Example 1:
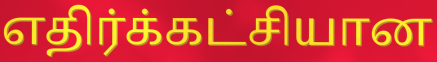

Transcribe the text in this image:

எதிர்க்கட்சியான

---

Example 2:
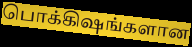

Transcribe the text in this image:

பொக்கிஷங்களான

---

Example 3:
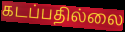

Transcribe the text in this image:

கடப்பதில்லை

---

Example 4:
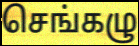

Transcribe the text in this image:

செங்கழு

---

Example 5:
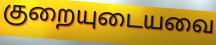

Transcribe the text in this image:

குறையுடையவை